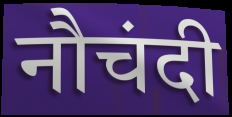
नौचंदी